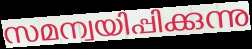
സമന്വയിപ്പിക്കുന്നു